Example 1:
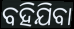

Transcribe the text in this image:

ବହିଯିବା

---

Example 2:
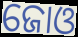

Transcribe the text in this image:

ଜୋଓ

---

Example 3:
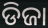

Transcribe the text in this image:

ଡିଜା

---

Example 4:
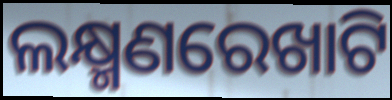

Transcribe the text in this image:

ଲକ୍ଷ୍ମଣରେଖାଟି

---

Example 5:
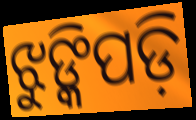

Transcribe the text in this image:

ଝୁଙ୍କିପଡ଼ି